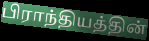
பிராந்தியத்தின்